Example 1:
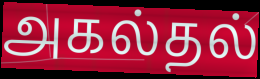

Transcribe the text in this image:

அகல்தல்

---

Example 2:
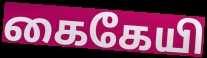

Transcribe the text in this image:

கைகேயி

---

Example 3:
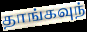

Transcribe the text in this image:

தாங்கவுந்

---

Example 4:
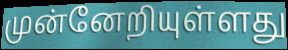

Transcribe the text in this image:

முன்னேறியுள்ளது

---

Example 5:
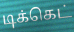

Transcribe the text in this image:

டிக்கெட்